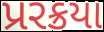
પ્રરક્રયા